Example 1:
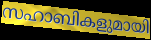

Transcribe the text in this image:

സഹാബികളുമായി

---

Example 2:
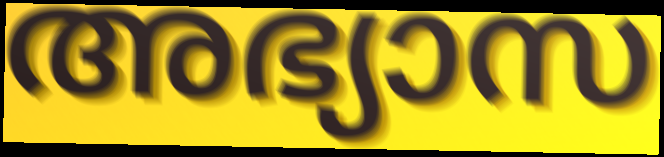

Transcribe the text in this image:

അഭ്യാസ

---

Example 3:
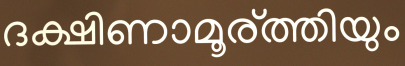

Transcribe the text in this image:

ദക്ഷിണാമൂര്ത്തിയും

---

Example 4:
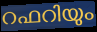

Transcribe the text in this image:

റഫറിയും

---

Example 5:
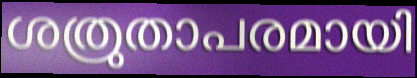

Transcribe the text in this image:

ശത്രുതാപരമായി